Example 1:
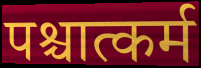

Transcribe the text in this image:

पश्चात्कर्म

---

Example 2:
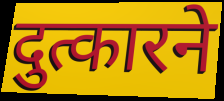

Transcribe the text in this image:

दुत्कारने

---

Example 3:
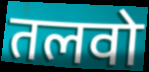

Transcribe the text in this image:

तलवो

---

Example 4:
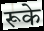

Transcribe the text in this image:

रूके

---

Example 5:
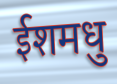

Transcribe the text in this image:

ईशमधु